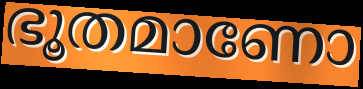
ഭൂതമാണോ